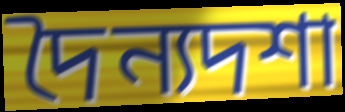
দৈন্যদশা